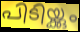
പിടിയ്ക്കും